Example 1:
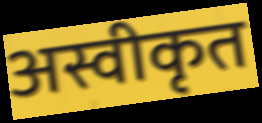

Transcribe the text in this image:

अस्‍वीकृत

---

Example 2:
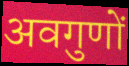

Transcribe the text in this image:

अवगुणों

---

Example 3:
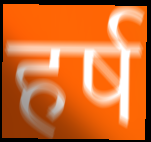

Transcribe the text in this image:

हर्ष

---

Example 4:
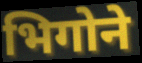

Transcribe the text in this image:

भिगोने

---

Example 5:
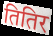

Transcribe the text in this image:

तितिर